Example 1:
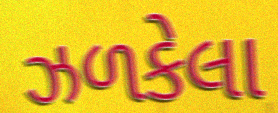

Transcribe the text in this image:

ઝળકેલા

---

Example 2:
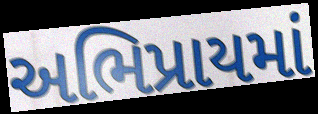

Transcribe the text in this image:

અભિપ્રાયમાં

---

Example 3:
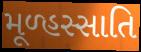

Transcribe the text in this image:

મૂળ્હસ્સાતિ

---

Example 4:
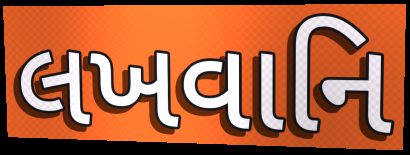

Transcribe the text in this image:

લખવાનિ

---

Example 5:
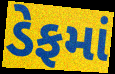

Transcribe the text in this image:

ડેફમાં